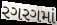
રગરગમાં